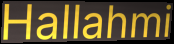
Hallahmi